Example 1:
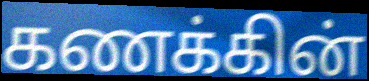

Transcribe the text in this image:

கணக்கின்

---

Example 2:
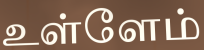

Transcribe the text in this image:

உள்ளேம்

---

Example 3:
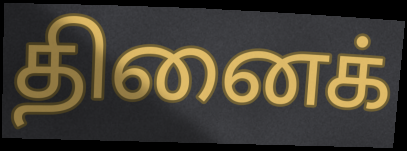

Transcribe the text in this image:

தினைக்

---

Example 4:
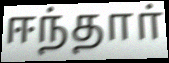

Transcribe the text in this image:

ஈந்தார்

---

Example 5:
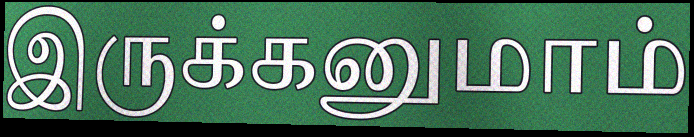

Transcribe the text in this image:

இருக்கனுமாம்